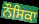
ਨੌਸਿਕਾ